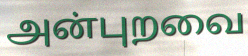
அன்புறவை